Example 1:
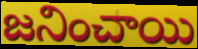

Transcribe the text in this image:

జనించాయి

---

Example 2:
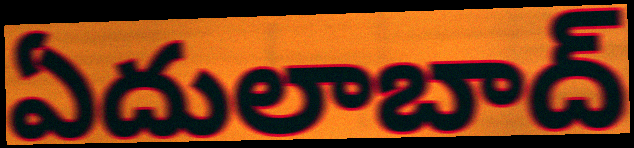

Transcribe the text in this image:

ఏదులాబాద్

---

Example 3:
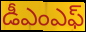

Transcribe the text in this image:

డీఎంఎఫ్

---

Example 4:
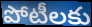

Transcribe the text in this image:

పోటీలకు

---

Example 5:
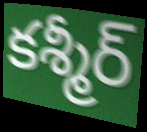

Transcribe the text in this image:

కశ్మీర్